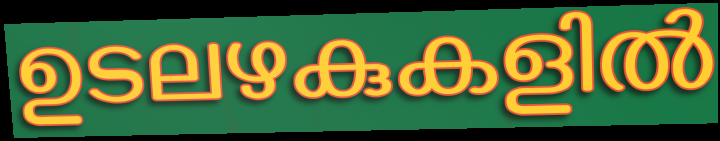
ഉടലഴകുകളിൽ